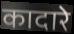
कादारे